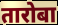
तारोबा